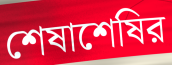
শেষাশেষির